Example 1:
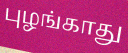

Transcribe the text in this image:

புழங்காது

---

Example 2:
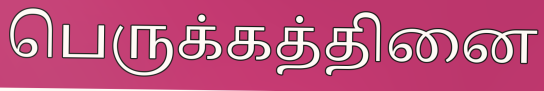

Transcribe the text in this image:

பெருக்கத்தினை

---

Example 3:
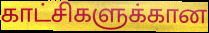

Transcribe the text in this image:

காட்சிகளுக்கான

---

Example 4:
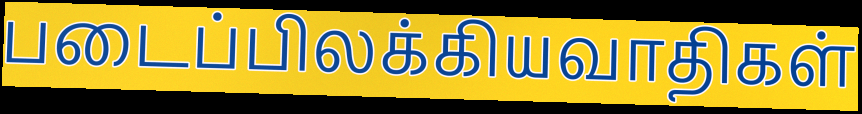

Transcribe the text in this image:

படைப்பிலக்கியவாதிகள்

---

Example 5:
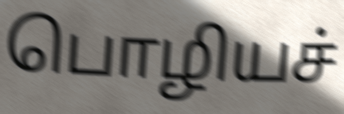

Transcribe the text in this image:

பொழியச்